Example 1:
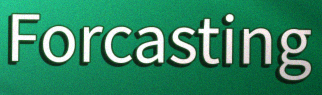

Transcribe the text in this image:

Forcasting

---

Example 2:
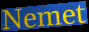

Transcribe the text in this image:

Nemet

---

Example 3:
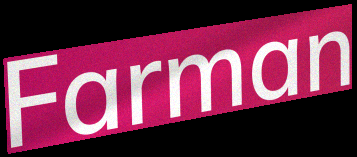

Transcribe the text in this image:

Farman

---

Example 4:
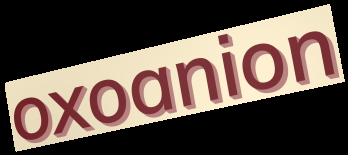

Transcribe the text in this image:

oxoanion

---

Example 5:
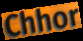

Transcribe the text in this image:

Chhor